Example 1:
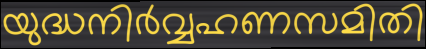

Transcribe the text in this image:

യുദ്ധനിർവ്വഹണസമിതി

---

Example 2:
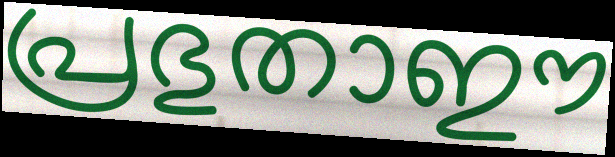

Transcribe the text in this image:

പ്രഭുതാഈ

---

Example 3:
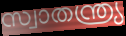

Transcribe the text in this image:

സ്വാതന്ത്ര്യ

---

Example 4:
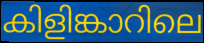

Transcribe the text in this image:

കിളിങ്കാറിലെ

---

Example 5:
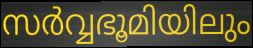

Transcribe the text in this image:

സർവ്വഭൂമിയിലും